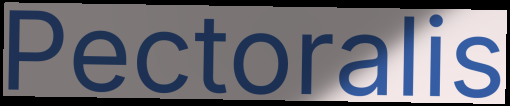
Pectoralis